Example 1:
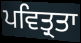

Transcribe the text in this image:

ਪਵਿਤ੍ਰਤਾ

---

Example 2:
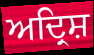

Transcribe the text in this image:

ਅਦ੍ਰਿਸ਼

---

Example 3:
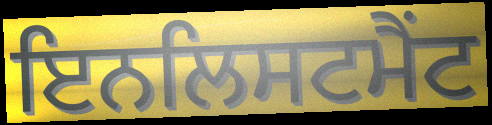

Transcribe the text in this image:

ਇਨਲਿਸਟਮੈਂਟ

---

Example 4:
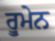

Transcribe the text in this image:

ਰੂਮੇਨ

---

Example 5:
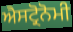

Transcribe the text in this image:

ਐਸਟ੍ਰੋਨੋਮੀ